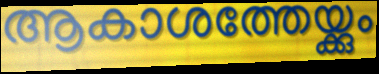
ആകാശത്തേയ്ക്കും